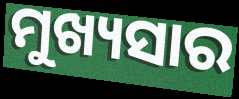
ମୁଖ୍ୟସାର